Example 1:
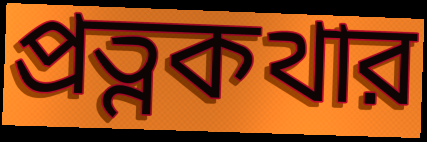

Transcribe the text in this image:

প্রত্নকথার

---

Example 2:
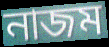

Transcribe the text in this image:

নাজম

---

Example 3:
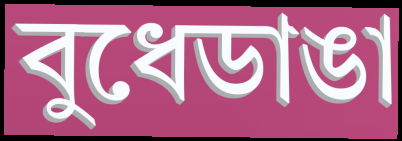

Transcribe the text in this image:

বুধেডাঙা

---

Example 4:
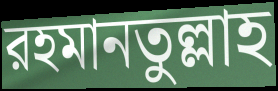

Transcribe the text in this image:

রহমানতুল্লাহ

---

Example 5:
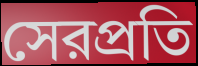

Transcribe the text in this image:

সেরপ্রতি